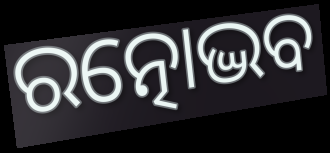
ରତ୍ନୋଦ୍ଭବ